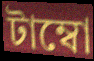
টাম্বো